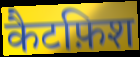
कैटफ़िश